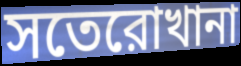
সতেরোখানা